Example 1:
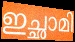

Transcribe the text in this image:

ഇച്ഛാമി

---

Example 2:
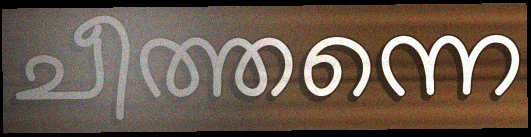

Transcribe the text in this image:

ചീത്തന്നെ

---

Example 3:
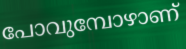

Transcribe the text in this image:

പോവുമ്പോഴാണ്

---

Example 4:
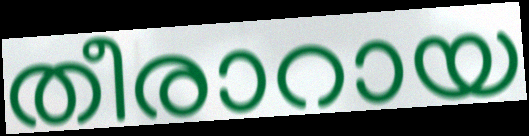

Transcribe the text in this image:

തീരാറായ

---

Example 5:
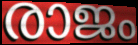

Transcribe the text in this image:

രാജം